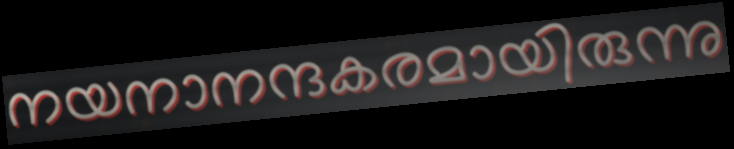
നയനാനന്ദകരമായിരുന്നു